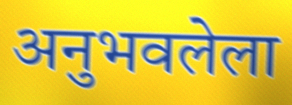
अनुभवलेला